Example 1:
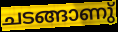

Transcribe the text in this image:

ചടങ്ങാണു്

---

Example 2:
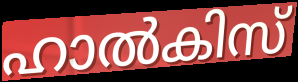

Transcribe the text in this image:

ഹാൽകിസ്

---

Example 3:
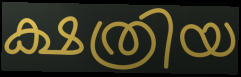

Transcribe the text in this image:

ക്ഷത്രിയ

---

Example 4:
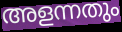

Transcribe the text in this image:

അളന്നതും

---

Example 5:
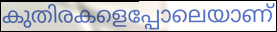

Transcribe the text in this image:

കുതിരകളെപ്പോലെയാണ്